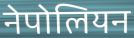
नेपोलियन